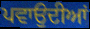
ਪਵਾਉਦੀਆਂ